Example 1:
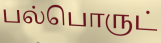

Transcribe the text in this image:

பல்பொருட்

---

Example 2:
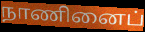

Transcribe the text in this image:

நாணினைப்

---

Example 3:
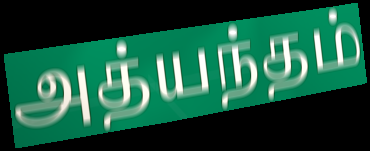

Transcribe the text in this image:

அத்யந்தம்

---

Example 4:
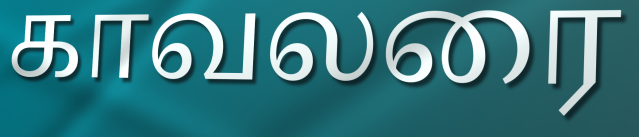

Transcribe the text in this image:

காவலரை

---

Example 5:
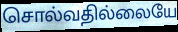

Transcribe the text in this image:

சொல்வதில்லையே